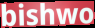
bishwo